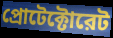
প্রোটেক্টোরেট